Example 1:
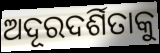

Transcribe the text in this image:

ଅଦୂରଦର୍ଶିତାକୁ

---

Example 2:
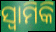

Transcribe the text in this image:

ସ୍ୱାମିକି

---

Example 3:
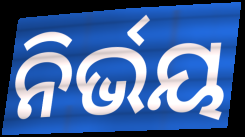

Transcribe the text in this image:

ନିର୍ଭୟ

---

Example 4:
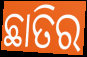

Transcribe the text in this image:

ଛାତିର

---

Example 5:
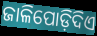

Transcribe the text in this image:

ଜାଳିପୋଡ଼ିଦିଏ